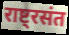
राष्ट्रसंत